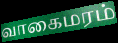
வாகைமரம்